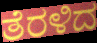
ತೆರಳಿದ